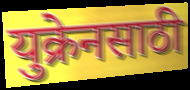
युक्रेनसाठी